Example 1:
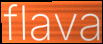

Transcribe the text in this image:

flava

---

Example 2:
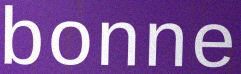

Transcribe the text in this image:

bonne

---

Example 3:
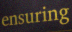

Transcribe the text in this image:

ensuring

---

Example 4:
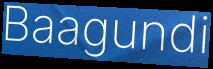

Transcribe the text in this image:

Baagundi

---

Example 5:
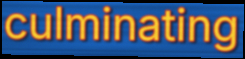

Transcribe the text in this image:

culminating